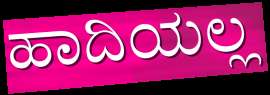
ಹಾದಿಯಲ್ಲ